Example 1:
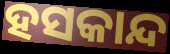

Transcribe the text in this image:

ହସକାନ୍ଦ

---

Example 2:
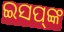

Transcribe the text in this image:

ଇସପ୍‌ଙ୍କ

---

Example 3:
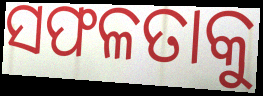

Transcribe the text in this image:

ସଫଳତାକୁ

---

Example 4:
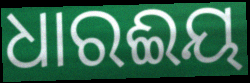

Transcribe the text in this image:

ଧାରଈୟ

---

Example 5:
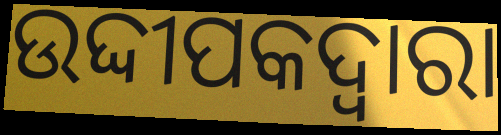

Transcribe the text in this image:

ଉଦ୍ଦୀପକଦ୍ବାରା